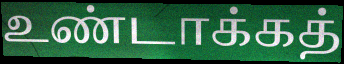
உண்டாக்கத்